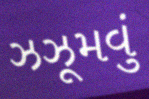
ઝઝૂમવું